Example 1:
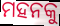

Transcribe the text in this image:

ମହନକୁ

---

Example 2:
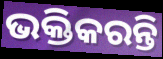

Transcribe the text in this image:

ଭକ୍ତିକରନ୍ତି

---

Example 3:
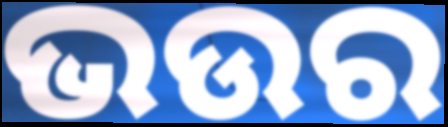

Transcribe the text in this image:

ଭଉର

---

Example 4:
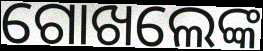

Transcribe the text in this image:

ଗୋଖଲେଙ୍କ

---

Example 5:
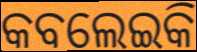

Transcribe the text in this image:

କବଲେଇକି